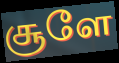
சூளே